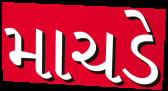
માચડે